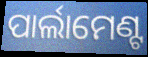
ପାର୍ଲାମେଣ୍ଟ